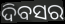
ଦିବସର